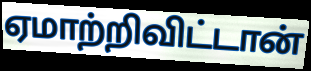
ஏமாற்றிவிட்டான்